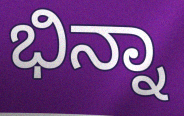
ಭಿನ್ನಾ